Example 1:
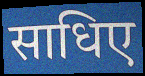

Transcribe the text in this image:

साधिए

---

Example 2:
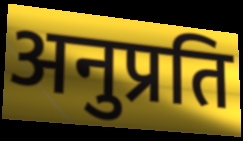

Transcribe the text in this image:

अनुप्रति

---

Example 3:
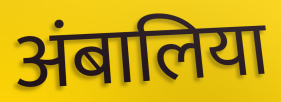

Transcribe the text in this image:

अंबालिया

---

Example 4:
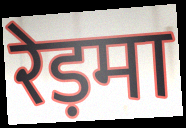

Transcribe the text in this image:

रेड़मा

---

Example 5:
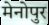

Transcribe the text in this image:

मेनोपुर